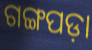
ଗଙ୍ଗପଡ଼ା